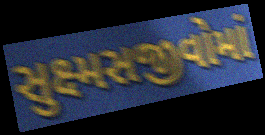
સુક્ષ્મસજીવોમાં